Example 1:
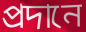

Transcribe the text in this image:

প্রদানে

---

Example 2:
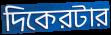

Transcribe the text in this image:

দিকেরটার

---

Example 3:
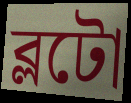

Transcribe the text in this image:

ব্লটো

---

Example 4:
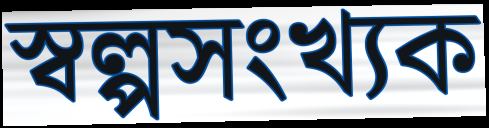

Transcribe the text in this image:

স্বল্পসংখ্যক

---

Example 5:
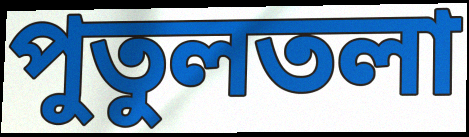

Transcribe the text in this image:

পুতুলতলা